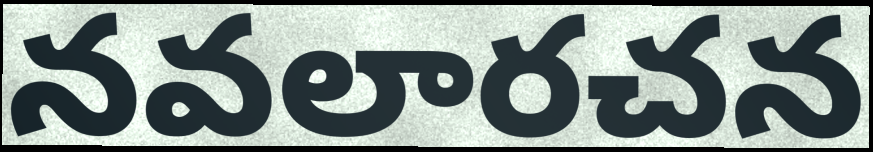
నవలారచన